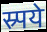
स्र्पये